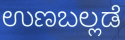
ಉಣಬಲ್ಲಡೆ